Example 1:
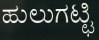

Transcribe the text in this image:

ಹುಲುಗಟ್ಟಿ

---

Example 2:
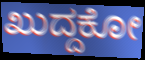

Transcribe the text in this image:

ಖುದ್ದಕೋ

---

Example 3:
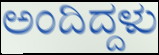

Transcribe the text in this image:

ಅಂದಿದ್ದಳು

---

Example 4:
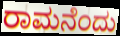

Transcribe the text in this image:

ರಾಮನೆಂದು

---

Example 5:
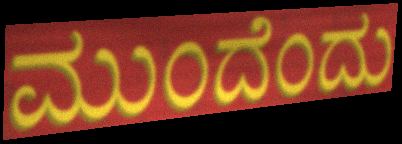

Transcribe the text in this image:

ಮುಂದೆಂದು